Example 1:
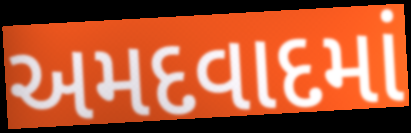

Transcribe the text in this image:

અમદવાદમાં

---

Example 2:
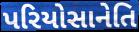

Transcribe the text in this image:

પરિયોસાનેતિ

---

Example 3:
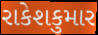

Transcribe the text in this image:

રાકેશકુમાર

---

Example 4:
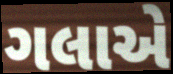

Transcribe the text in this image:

ગલાએ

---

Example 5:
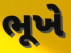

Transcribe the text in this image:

ભૂખે